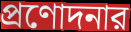
প্রণোদনার